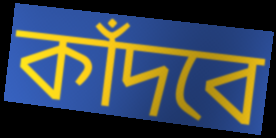
কাঁদবে